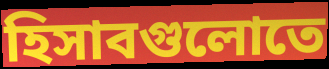
হিসাবগুলোতে